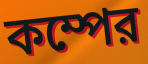
কম্পের